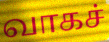
வாகச்